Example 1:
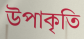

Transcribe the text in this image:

উপাকৃতি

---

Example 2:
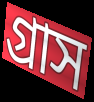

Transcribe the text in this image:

গ্ৰাস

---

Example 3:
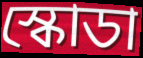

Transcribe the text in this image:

স্কোডা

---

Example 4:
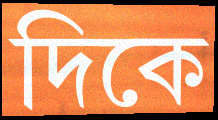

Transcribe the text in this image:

দিকে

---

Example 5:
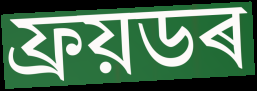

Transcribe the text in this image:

ফ্ৰয়ডৰ